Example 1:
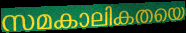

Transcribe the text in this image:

സമകാലികതയെ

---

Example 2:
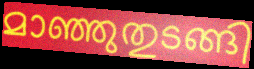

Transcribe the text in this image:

മാഞ്ഞുതുടങ്ങി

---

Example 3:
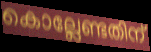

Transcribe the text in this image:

കൊല്ലേണ്ടതിന്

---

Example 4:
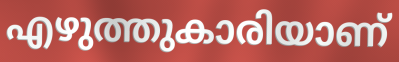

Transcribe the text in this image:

എഴുത്തുകാരിയാണ്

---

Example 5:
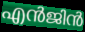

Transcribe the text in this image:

എൻജിൻ